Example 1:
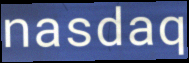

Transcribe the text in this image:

nasdaq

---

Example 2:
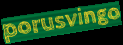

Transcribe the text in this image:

porusvingo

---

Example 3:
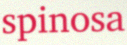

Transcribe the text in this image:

spinosa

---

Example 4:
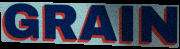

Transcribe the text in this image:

GRAIN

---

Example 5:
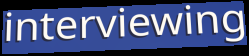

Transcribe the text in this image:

interviewing